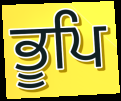
ਭੂਪਿ